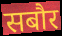
सबौर